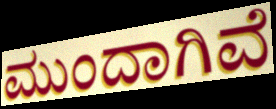
ಮುಂದಾಗಿವೆ